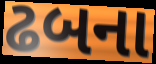
ઢબના